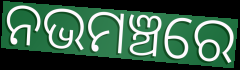
ନଭମଞ୍ଚରେ